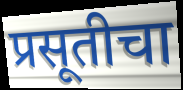
प्रसूतीचा